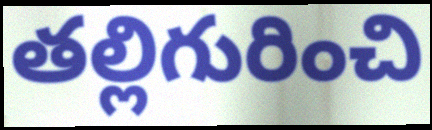
తల్లిగురించి